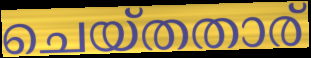
ചെയ്തതാര്